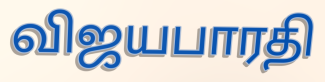
விஜயபாரதி